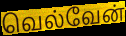
வெல்வேன்